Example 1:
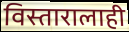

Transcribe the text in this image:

विस्तारालाही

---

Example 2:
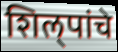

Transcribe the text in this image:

शिल्पांचे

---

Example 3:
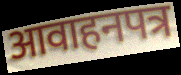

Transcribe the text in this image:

आवाहनपत्र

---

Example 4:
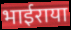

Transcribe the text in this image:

भाईराया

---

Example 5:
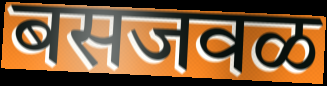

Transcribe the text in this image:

बसजवळ